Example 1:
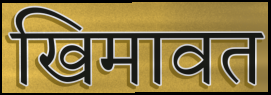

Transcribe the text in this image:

खिमावत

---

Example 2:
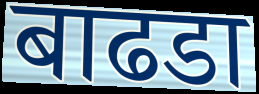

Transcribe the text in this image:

बाढडा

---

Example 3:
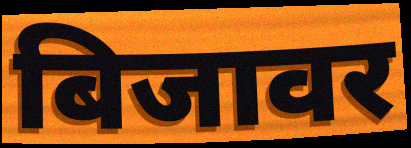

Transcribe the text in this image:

बिजावर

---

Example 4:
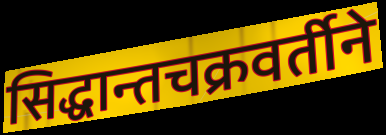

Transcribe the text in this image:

सिद्धान्तचक्रवर्तीने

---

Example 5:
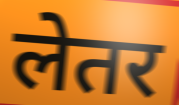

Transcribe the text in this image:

लेतर